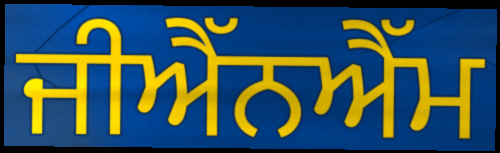
ਜੀਐੱਨਐੱਮ